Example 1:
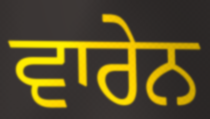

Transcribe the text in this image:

ਵਾਰੇਨ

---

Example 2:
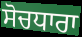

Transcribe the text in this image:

ਸੋਚਧਾਰਾ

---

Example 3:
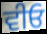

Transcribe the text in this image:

ਵੀਓ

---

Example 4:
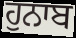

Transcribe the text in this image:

ਹੁਨਾਬ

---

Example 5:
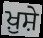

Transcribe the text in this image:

ਖ਼ੁਸ਼ੇ